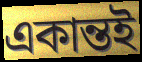
একান্তই